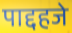
पाद्दहजे